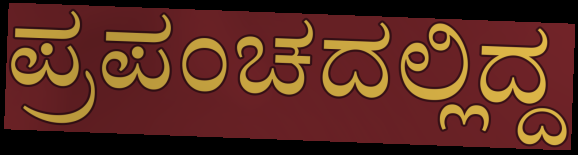
ಪ್ರಪಂಚದಲ್ಲಿದ್ದ